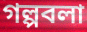
গল্পবলা